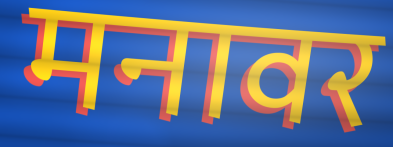
मनावर